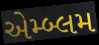
એમ્બ્લમ